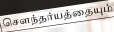
சௌந்தர்யத்தையும்